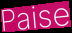
Paise